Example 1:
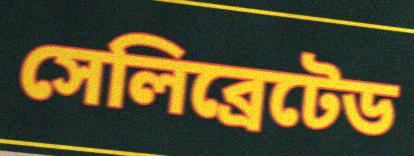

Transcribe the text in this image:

সেলিব্রেটেড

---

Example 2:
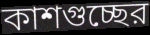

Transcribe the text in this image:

কাশগুচ্ছের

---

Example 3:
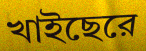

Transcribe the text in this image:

খাইছেরে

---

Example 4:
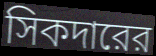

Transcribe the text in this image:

সিকদারের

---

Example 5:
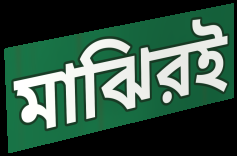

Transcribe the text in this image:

মাঝিরই